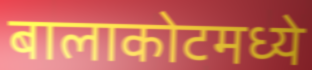
बालाकोटमध्ये